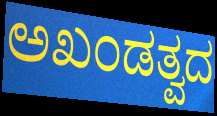
ಅಖಂಡತ್ವದ